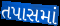
તપાસમાં